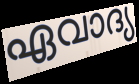
ഏവാദ്യ